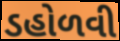
ડહોળવી